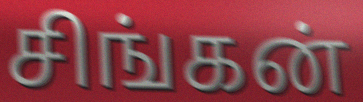
சிங்கன்